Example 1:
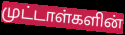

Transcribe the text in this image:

முட்டாள்களின்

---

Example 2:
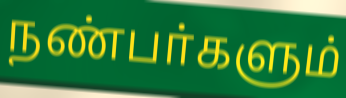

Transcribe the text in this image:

நண்பர்களும்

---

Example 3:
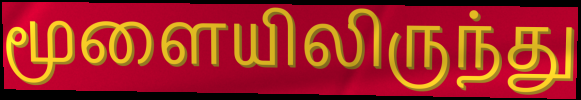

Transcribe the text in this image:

மூளையிலிருந்து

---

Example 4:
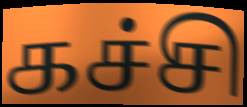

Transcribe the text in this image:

கச்சி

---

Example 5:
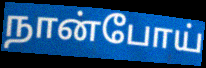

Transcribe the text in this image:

நான்போய்